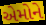
એમોને